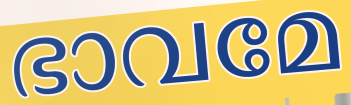
ഭാവമേ